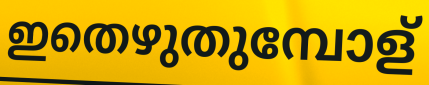
ഇതെഴുതുമ്പോള്